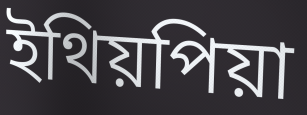
ইথিয়পিয়া